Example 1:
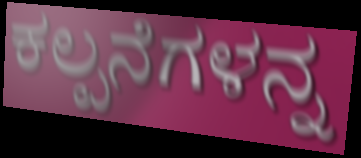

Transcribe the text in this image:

ಕಲ್ಪನೆಗಳನ್ನ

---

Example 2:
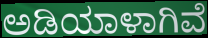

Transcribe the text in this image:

ಅಡಿಯಾಳಾಗಿವೆ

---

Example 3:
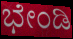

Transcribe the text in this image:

ಭೇಂಡಿ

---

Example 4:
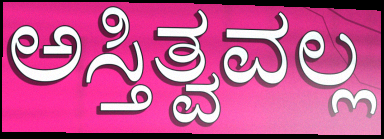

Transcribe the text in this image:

ಅಸ್ತಿತ್ವವಲ್ಲ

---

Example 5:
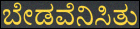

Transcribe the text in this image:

ಬೇಡವೆನಿಸಿತು